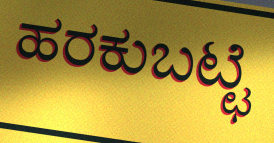
ಹರಕುಬಟ್ಟೆ